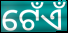
ଟେଁଏଁ